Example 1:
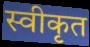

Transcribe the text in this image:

स्‍वीकृत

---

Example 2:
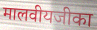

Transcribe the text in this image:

मालवीयजीका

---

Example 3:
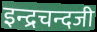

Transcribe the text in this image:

इन्द्रचन्दजी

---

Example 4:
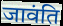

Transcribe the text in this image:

जावंति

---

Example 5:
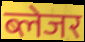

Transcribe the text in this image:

ब्लेजर